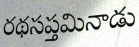
రథసప్తమినాడు